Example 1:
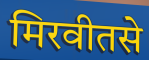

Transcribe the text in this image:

मिरवीतसे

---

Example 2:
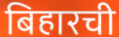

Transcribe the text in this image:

बिहारची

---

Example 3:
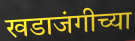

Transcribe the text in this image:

खडाजंगीच्या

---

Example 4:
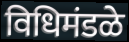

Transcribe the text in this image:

विधिमंडळे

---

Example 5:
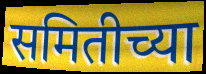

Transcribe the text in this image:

समितीच्या